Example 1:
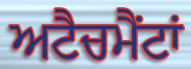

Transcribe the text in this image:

ਅਟੈਚਮੈਂਟਾਂ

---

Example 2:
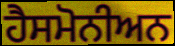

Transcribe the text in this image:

ਹੈਸਮੋਨੀਅਨ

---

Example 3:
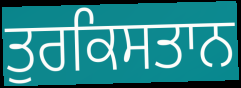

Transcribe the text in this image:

ਤੁਰਕਿਸਤਾਨ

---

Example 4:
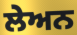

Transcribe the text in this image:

ਲੇਅਨ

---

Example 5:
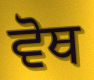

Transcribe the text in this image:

ਵੋਥ